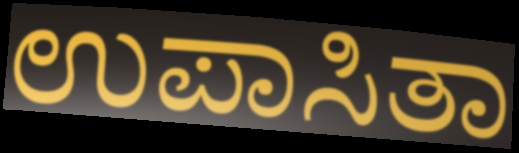
ಉಪಾಸಿತಾ